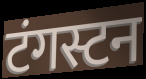
टंगस्टन